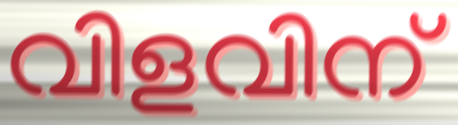
വിളവിന്